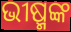
ଭୀଷ୍ମଙ୍କ